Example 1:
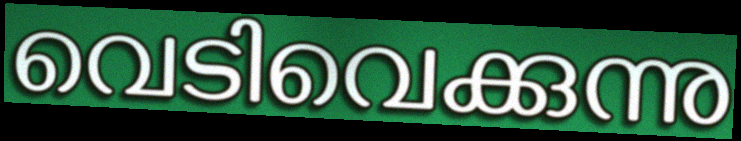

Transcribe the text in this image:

വെടിവെക്കുന്നു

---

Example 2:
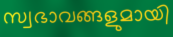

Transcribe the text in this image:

സ്വഭാവങ്ങളുമായി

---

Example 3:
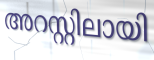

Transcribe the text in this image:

അറസ്റ്റിലായി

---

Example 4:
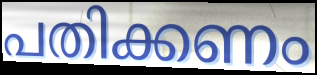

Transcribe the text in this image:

പതിക്കണം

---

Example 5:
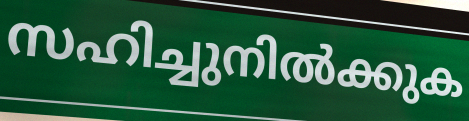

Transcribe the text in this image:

സഹിച്ചുനിൽക്കുക